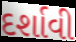
દર્શાવી